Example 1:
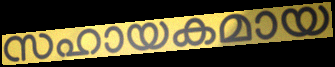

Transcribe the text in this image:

സഹായകമായ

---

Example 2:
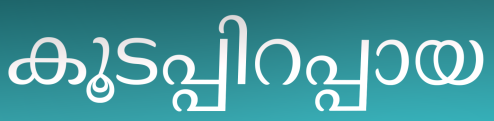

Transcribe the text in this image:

കൂടപ്പിറപ്പായ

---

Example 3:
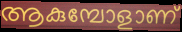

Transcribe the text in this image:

ആകുമ്പോളാണ്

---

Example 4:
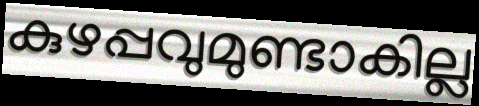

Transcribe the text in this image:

കുഴപ്പവുമുണ്ടാകില്ല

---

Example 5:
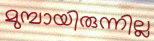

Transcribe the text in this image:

മുമ്പായിരുന്നില്ല